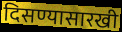
दिसण्यासारखी